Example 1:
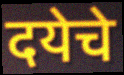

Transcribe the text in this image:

दयेचे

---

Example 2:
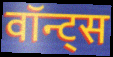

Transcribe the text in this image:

वॉन्ट्स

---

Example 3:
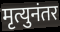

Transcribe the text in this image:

मृत्युनंतर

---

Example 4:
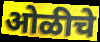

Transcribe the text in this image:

ओळीचे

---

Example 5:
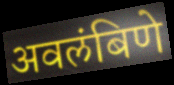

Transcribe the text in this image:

अवलंबिणे